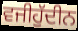
ਵਜੀਹੁੱਦੀਨ